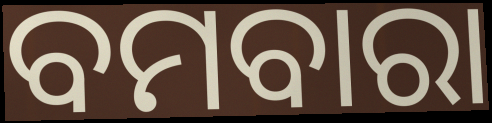
ବମବାରା